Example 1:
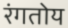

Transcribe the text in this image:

रंगतोय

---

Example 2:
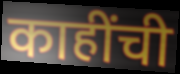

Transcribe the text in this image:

काहींची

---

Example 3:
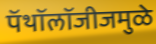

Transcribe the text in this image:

पॅथॉलॉजीजमुळे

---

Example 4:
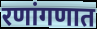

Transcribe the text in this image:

रणांगणात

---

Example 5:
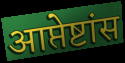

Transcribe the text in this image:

आप्तेष्टांस